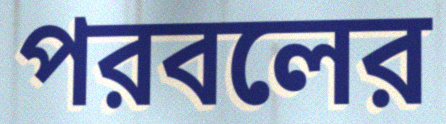
পরবলের